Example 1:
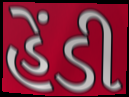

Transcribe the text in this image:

હેંડી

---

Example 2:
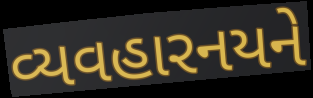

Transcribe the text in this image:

વ્યવહારનયને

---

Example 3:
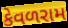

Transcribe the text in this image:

કેવળરામ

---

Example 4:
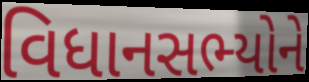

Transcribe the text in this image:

વિધાનસભ્યોને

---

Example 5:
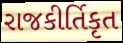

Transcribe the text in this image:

રાજકીર્તિકૃત